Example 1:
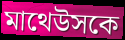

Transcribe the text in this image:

মাথেউসকে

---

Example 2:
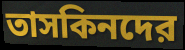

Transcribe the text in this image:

তাসকিনদের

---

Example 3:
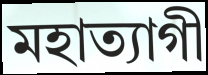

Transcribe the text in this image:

মহাত্যাগী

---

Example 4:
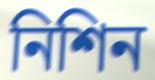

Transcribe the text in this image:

নিশিন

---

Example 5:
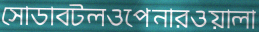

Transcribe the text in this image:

সোডাবটলওপেনারওয়ালা